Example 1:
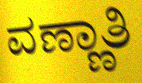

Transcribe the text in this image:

ವಣ್ಣಾತಿ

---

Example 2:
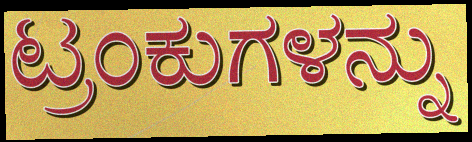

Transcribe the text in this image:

ಟ್ರಂಕುಗಳನ್ನು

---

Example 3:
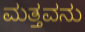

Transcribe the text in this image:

ಮತ್ತವನು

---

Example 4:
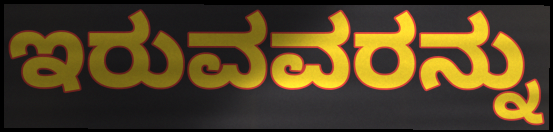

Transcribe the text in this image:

ಇರುವವರನ್ನು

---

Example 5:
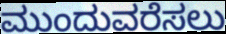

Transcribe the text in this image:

ಮುಂದುವರೆಸಲು